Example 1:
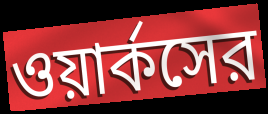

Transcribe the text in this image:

ওয়ার্কসের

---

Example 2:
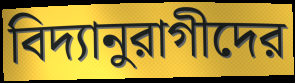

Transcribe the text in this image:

বিদ্যানুরাগীদের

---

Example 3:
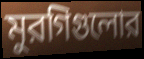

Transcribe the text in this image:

মুরগিগুলোর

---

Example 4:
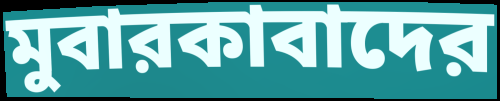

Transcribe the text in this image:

মুবারকাবাদের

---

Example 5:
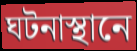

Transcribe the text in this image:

ঘটনাস্থানে